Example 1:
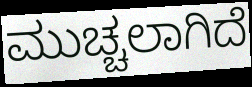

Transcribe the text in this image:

ಮುಚ್ಚಲಾಗಿದೆ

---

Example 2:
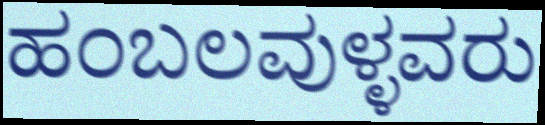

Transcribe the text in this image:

ಹಂಬಲವುಳ್ಳವರು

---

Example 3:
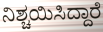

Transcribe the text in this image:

ನಿಶ್ಚಯಿಸಿದ್ದಾರೆ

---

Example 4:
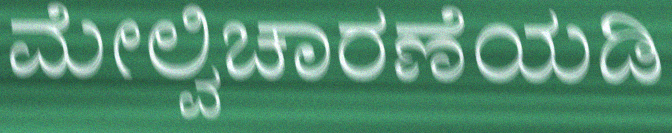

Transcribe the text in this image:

ಮೇಲ್ವಿಚಾರಣೆಯಡಿ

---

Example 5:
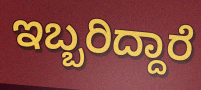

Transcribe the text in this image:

ಇಬ್ಬರಿದ್ದಾರೆ